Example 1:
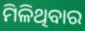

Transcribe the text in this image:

ମିଳିଥିବାର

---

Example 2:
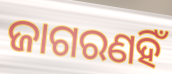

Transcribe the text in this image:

ଜାଗରଣହିଁ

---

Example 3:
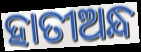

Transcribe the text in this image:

ହାତୀଅନ୍ଧ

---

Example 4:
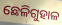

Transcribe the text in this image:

ଛେଳିଗୁହାଳ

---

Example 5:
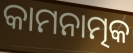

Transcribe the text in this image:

କାମନାତ୍ମକ